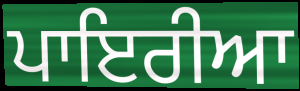
ਪਾਇਰੀਆ